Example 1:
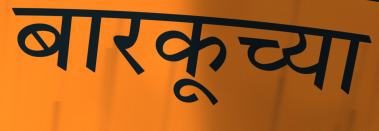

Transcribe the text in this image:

बारकूच्या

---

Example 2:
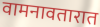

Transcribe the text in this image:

वामनावतारात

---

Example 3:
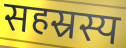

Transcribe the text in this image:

सहस्रस्य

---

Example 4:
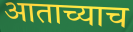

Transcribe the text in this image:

आताच्याच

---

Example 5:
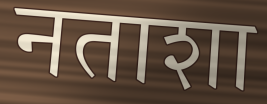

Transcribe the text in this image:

नताशा